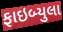
ફાઇબ્યુલા